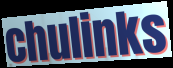
chulinks